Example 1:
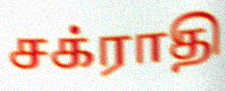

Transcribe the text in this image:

சக்ராதி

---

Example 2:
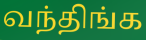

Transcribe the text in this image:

வந்திங்க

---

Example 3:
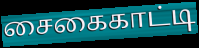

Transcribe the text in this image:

சைகைகாட்டி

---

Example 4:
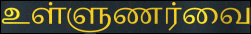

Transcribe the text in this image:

உள்ளுணர்வை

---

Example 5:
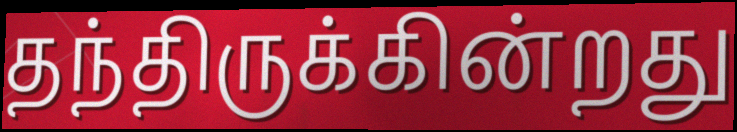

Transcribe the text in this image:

தந்திருக்கின்றது